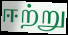
ஈற்று